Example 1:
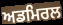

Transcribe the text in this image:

ਅਡਮਿਰਲ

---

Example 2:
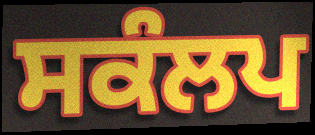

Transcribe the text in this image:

ਸਕੰਲਪ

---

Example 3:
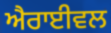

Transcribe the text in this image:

ਐਰਾਈਵਲ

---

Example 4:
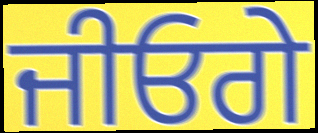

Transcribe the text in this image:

ਜੀਓਗੇ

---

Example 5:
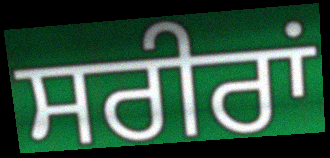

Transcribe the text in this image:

ਸਰੀਰਾਂ